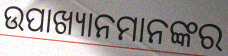
ଉପାଖ୍ୟାନମାନଙ୍କର